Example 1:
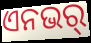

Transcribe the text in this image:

ଏନଭର୍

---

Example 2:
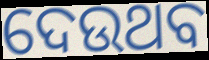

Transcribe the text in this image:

ଦେଉଥବ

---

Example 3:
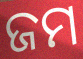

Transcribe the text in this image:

ଜମ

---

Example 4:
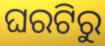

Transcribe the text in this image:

ଘରଟିରୁ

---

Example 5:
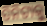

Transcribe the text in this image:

ତିନିଟାକୁ